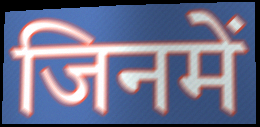
जिनमें